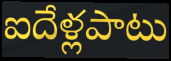
ఐదేళ్లపాటు